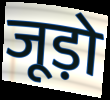
जूड़ो